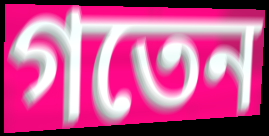
গতেন